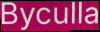
Byculla